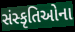
સંસ્કૃતિઓના